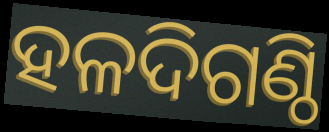
ହଳଦିଗଣ୍ଠି